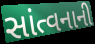
સાંત્વનાની